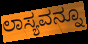
ಲಾಸ್ಯವನ್ನೂ